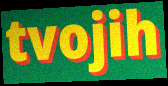
tvojih